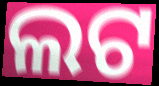
ଲଟ